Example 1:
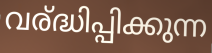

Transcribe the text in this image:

വര്ദ്ധിപ്പിക്കുന്ന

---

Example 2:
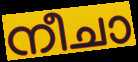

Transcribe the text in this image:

നീചാ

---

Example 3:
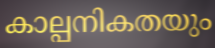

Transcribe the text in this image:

കാല്പനികതയും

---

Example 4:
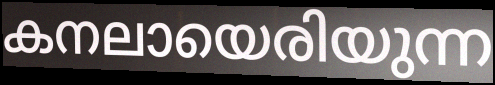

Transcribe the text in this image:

കനലായെരിയുന്ന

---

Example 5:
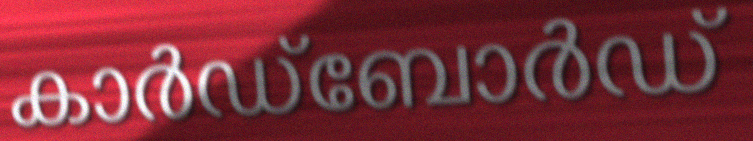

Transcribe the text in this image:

കാർഡ്ബോർഡ്